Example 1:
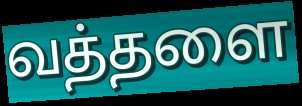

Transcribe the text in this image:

வத்தளை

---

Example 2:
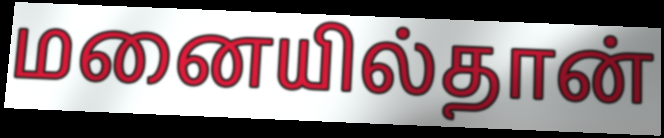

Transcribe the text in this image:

மனையில்தான்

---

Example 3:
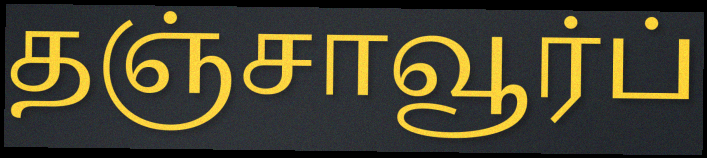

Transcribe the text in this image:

தஞ்சாவூர்ப்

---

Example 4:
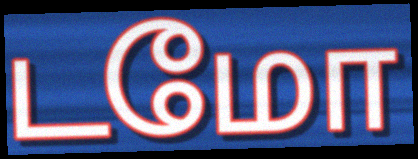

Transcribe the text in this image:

டமோ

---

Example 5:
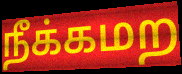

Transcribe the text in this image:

நீக்கமற